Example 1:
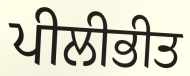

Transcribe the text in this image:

ਪੀਲੀਭੀਤ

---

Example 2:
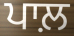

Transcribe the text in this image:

ਪਾਲ਼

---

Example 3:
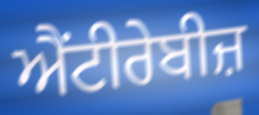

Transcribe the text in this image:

ਐਂਟੀਰੇਬੀਜ਼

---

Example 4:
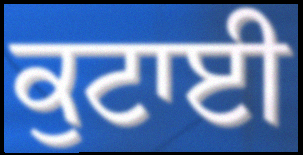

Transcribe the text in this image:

ਕੁਟਾਈ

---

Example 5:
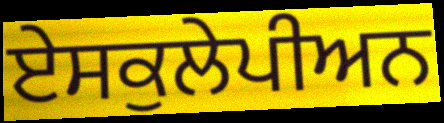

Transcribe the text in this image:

ਏਸਕੁਲੇਪੀਅਨ